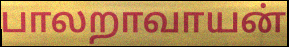
பாலறாவாயன்